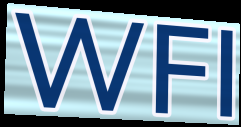
WFI